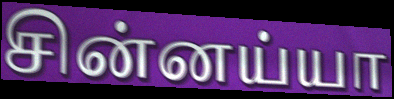
சின்னய்யா